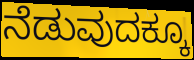
ನೆಡುವುದಕ್ಕೂ